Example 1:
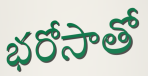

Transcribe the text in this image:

భరోసాతో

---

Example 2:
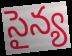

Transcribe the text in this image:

సైన్య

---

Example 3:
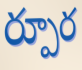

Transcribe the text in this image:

ర్పూర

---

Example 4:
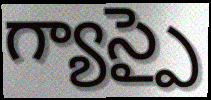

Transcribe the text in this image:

గ్యాస్పై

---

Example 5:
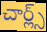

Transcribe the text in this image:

చార్ల్స్